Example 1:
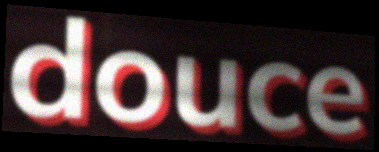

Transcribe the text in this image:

douce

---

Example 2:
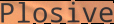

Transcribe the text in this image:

Plosive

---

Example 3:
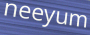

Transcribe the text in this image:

neeyum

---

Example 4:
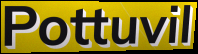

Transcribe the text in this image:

Pottuvil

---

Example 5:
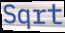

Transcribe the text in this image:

Sqrt